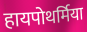
हायपोथर्मिया